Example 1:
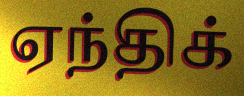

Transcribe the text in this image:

ஏந்திக்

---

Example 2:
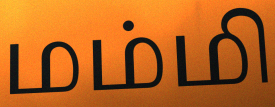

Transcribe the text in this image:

மம்மி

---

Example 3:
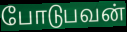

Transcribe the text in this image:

போடுபவன்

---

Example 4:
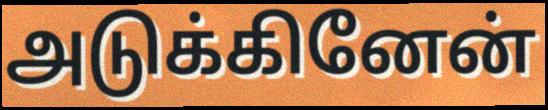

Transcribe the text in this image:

அடுக்கினேன்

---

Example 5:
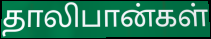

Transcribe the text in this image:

தாலிபான்கள்